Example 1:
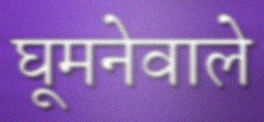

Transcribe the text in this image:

घूमनेवाले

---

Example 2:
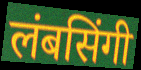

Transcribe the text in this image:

लंबसिंगी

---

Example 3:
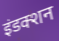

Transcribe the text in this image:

इंडक्शन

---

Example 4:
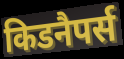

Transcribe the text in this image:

किडनैपर्स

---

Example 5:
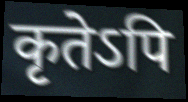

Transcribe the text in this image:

कृतेऽपि